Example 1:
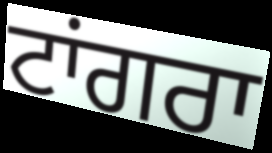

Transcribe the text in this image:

ਟਾਂਗਰਾ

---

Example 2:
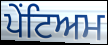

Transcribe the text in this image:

ਪੇਂਟਿਅਮ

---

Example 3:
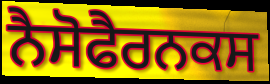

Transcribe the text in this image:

ਨੈਸੋਫੈਰਨਕਸ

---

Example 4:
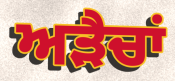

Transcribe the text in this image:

ਅੜੈਚਾਂ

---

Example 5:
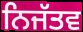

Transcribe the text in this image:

ਨਿਜੱਤਵ